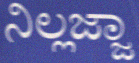
ನಿಲ್ಲಜ್ಜಾ